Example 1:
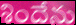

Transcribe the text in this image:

శిందేను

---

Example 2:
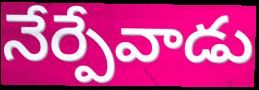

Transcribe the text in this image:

నేర్పేవాడు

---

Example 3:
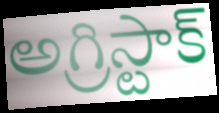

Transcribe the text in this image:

అగ్రిస్టాక్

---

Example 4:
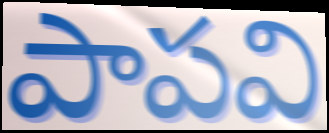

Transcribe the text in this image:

పాపవి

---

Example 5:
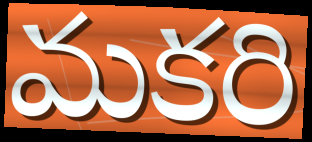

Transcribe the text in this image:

మకరి